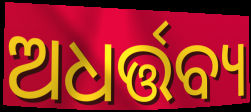
ଅଧର୍ତ୍ତବ୍ୟ